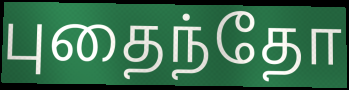
புதைந்தோ